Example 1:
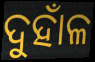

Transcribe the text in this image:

ଦୁହାଁଳ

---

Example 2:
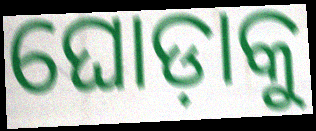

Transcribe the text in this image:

ଘୋଡ଼ାକୁ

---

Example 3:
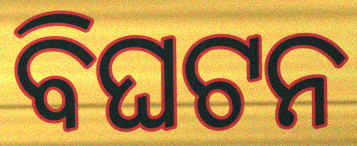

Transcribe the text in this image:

ବିଘଟନ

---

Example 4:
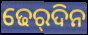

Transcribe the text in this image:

ଢେର୍‌ଦିନ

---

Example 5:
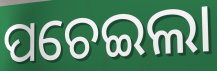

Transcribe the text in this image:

ପଚେଇଲା